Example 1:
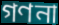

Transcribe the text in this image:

গণনা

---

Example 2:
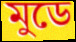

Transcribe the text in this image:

মুডে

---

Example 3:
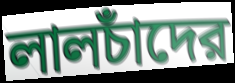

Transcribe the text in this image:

লালচাঁদের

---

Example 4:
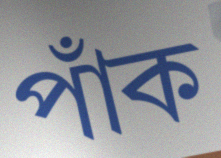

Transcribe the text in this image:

পাঁক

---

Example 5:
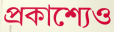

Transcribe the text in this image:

প্রকাশ্যেও